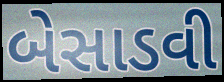
બેસાડવી